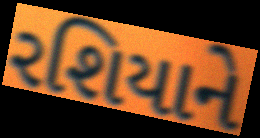
રશિયાને